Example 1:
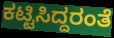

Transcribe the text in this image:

ಕಟ್ಟಿಸಿದ್ದರಂತೆ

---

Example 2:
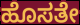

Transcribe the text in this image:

ಹೊಸತೇ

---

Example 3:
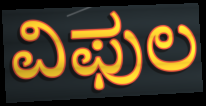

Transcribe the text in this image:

ವಿಫುಲ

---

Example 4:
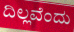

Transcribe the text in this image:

ದಿಲ್ಲವೆಂದು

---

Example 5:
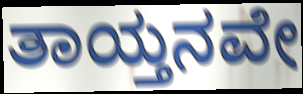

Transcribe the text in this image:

ತಾಯ್ತನವೇ